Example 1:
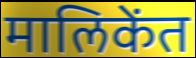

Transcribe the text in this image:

मालिकेंत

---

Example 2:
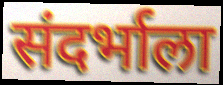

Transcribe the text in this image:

संदर्भाला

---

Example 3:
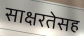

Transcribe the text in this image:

साक्षरतेसह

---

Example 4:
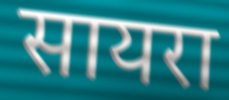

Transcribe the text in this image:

सायरा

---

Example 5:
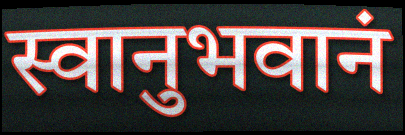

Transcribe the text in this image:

स्वानुभवानं